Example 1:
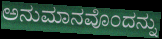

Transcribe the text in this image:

ಅನುಮಾನವೊಂದನ್ನು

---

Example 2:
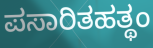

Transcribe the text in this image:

ಪಸಾರಿತಹತ್ಥಂ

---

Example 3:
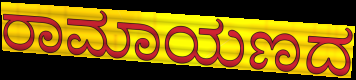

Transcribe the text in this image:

ರಾಮಾಯಣದ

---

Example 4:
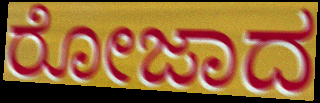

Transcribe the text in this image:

ರೋಜಾದ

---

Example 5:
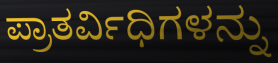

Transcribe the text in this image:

ಪ್ರಾತರ್ವಿಧಿಗಳನ್ನು